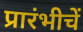
प्रारंभीचें